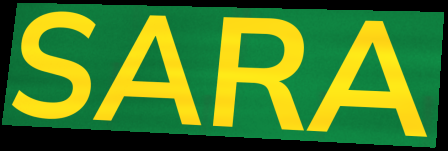
SARA